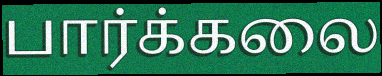
பார்க்கலை